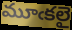
మూఁకలై